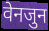
वेनजुन